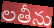
లతీను